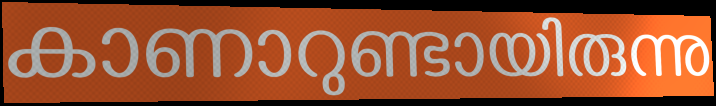
കാണാറുണ്ടായിരുന്നു